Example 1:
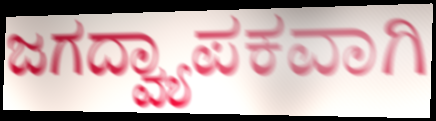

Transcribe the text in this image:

ಜಗದ್ವ್ಯಾಪಕವಾಗಿ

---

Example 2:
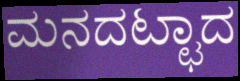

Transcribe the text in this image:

ಮನದಟ್ಟಾದ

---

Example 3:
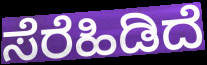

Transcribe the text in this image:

ಸೆರೆಹಿಡಿದೆ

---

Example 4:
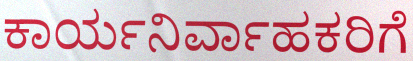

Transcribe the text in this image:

ಕಾರ್ಯನಿರ್ವಾಹಕರಿಗೆ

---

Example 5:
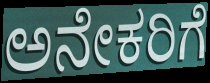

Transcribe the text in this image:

ಅನೇಕರಿಗೆ